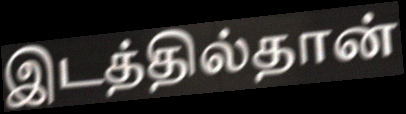
இடத்தில்தான்